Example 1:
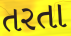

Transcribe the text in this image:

તરતા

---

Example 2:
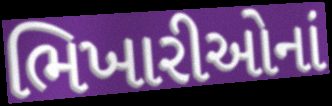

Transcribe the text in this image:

ભિખારીઓનાં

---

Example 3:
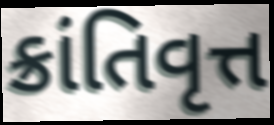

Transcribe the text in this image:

ક્રાંતિવૃત્ત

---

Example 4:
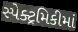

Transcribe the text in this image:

સ્પેક્ટ્રમિકીમાં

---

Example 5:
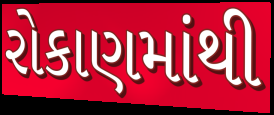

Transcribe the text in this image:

રોકાણમાંથી